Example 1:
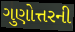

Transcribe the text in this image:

ગુણોત્તરની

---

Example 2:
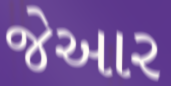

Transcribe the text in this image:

જેઆર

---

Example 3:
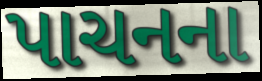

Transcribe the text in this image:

પાચનના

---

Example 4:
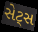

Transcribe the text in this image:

સેટ્સ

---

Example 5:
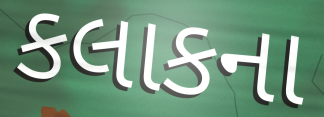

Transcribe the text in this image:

કલાકના